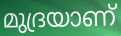
മുദ്രയാണ്